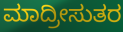
ಮಾದ್ರೀಸುತರ